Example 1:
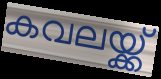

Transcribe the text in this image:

കവലയ്ക്ക്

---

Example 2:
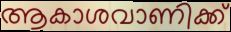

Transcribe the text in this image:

ആകാശവാണിക്ക്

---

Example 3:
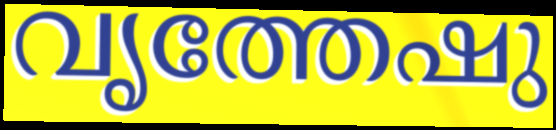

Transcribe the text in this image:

വൃത്തേഷു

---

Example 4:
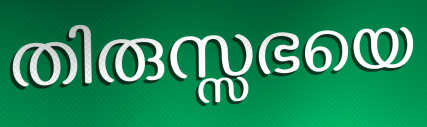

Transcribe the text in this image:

തിരുസ്സഭയെ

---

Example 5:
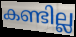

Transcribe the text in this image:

കണ്ടില്ല